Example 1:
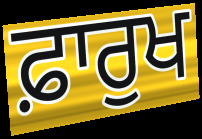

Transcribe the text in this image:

ਫ਼ਾਰੁਖ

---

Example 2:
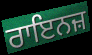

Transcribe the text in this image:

ਰਾਇਨਜ਼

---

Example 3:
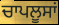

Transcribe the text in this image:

ਚਾਪਲੂਸਾਂ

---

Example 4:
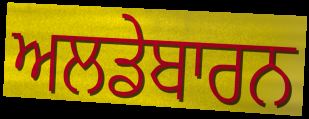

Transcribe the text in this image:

ਅਲਡੇਬਾਰਨ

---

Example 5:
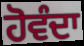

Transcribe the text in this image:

ਹੋਵੰਦਾ